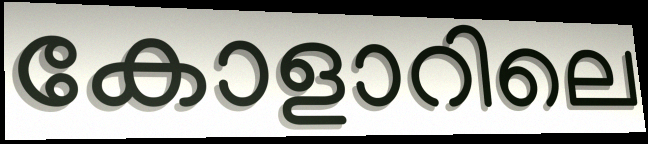
കോളാറിലെ